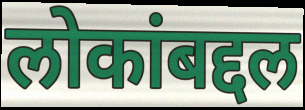
लोकांबद्दल